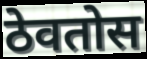
ठेवतोस